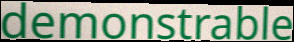
demonstrable